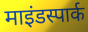
माइंडस्पार्क